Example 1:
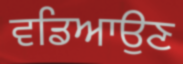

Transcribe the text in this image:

ਵਡਿਆਉਣ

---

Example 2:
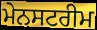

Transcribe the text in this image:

ਮੇਨਸਟਰੀਮ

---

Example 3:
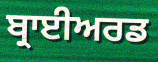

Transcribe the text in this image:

ਬ੍ਰਾਈਅਰਡ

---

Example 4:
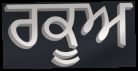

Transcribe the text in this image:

ਰਕੂਅ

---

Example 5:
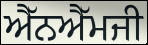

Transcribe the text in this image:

ਐੱਨਐੱਮਜੀ